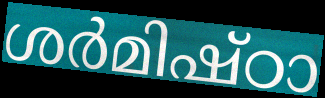
ശർമിഷ്ഠാ